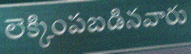
లెక్కింపబడినవారు